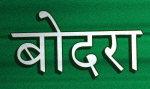
बोदरा